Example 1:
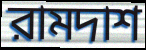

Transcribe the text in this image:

রামদাশ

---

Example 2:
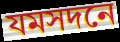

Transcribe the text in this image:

যমসদনে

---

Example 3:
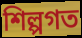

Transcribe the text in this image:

শিল্পগত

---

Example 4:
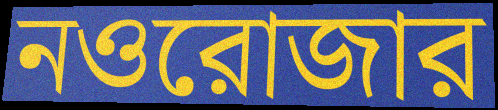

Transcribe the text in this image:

নওরোজার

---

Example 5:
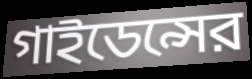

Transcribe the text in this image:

গাইডেন্সের